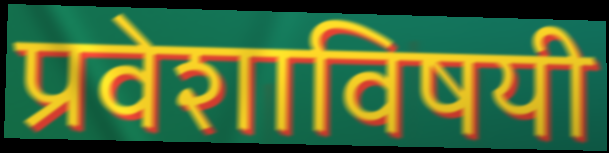
प्रवेशाविषयी